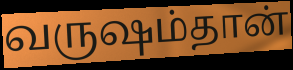
வருஷம்தான்